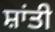
ਸ਼ਾਂਤੀ